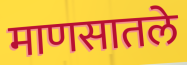
माणसातले